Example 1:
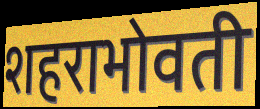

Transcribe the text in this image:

शहराभोवती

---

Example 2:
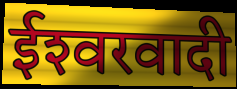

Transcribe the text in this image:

ईश्वरवादी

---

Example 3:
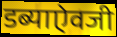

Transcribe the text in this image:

डब्याऐवजी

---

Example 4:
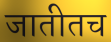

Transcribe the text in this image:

जातीतच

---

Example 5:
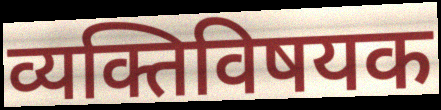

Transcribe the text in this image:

व्यक्तिविषयक